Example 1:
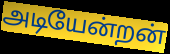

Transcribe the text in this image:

அடியேன்றன்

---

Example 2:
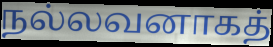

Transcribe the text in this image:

நல்லவனாகத்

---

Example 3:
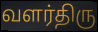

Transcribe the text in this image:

வளர்திரு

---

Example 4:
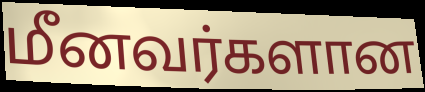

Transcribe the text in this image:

மீனவர்களான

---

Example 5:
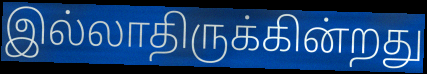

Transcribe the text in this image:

இல்லாதிருக்கின்றது